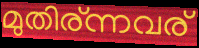
മുതിര്ന്നവര്